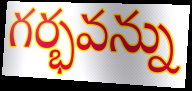
గర్భవన్ను